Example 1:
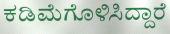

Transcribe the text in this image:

ಕಡಿಮೆಗೊಳಿಸಿದ್ದಾರೆ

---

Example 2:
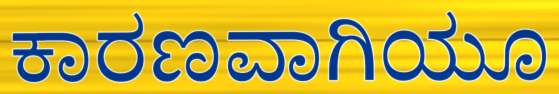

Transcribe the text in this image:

ಕಾರಣವಾಗಿಯೂ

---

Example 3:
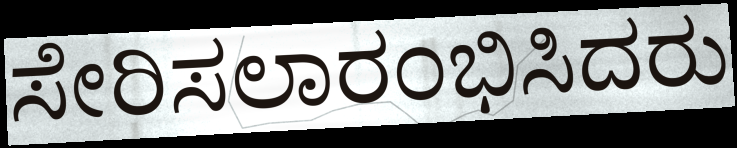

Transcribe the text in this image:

ಸೇರಿಸಲಾರಂಭಿಸಿದರು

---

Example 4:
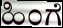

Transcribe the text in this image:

ಹಿಂಗೆ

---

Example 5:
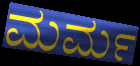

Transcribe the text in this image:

ಮರ್ಮ